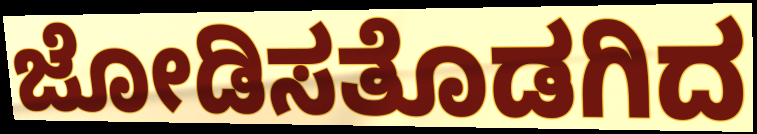
ಜೋಡಿಸತೊಡಗಿದ